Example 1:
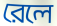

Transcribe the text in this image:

রেলে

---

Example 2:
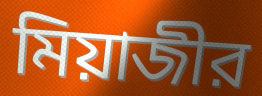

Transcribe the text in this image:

মিয়াজীর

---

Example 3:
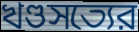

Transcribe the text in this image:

খণ্ডসত্যের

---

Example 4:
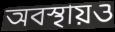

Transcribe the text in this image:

অবস্থায়ও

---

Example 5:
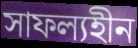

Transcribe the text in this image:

সাফল্যহীন